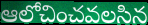
ఆలోచించవలసిన